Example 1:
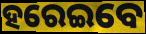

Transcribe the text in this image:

ହରେଇବେ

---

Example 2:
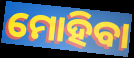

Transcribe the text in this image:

ମୋହିବା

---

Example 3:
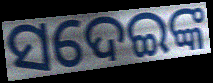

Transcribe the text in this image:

ସଦେଇଙ୍କ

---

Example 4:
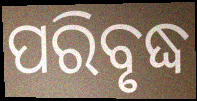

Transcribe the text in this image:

ପରିବୃଦ୍ଧ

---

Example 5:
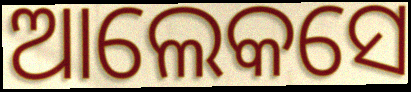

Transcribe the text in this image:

ଆଲେକସେ